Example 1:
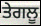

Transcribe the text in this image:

ਤੇਗਲੂ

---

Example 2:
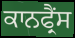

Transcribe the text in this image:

ਕਾਨਫ੍ਰੈਂਸ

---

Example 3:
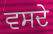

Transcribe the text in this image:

ਵਸਦੇ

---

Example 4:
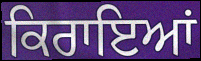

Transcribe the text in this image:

ਕਿਰਾਇਆਂ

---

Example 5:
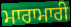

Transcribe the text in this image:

ਮਾਰਾਮਾਰੀ